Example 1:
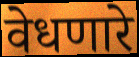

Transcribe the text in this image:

वेधणारे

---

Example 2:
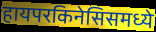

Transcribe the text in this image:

हायपरकिनेसिसमध्ये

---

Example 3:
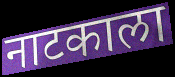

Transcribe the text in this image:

नाटकाला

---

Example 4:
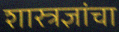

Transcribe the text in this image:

शास्त्रज्ञांचा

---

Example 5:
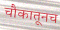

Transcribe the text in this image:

चौकातूनच